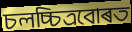
চলচ্চিত্ৰবোৰত